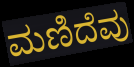
ಮಣಿದೆವು